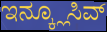
ಇನ್ಕ್ಲೂಸಿವ್